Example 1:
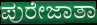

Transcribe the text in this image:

ಪುರೇಜಾತಾ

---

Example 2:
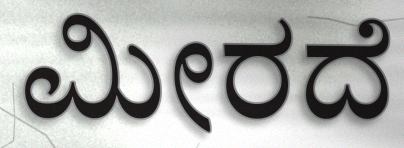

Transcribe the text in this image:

ಮೀರದೆ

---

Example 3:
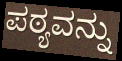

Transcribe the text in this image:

ಪಠ್ಯವನ್ನು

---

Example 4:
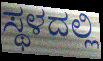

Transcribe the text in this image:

ಸ್ಥಳದಲ್ಲಿ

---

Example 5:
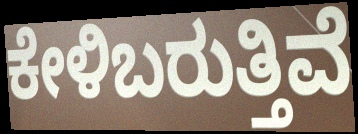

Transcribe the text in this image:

ಕೇಳಿಬರುತ್ತಿವೆ